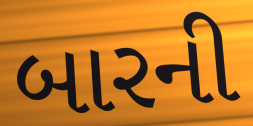
બારની